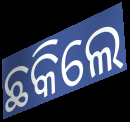
ଛକିଲେ